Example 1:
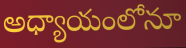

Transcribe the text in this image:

అధ్యాయంలోనూ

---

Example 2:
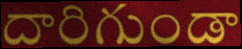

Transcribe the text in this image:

దారిగుండా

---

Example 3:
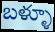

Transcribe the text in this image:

బళ్ళూ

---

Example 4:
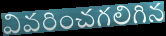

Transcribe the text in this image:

వివరించగలిగిన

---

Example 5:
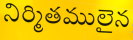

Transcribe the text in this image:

నిర్మితములైన